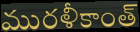
మురళీకాంత్